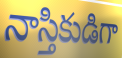
నాస్తికుడిగా